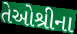
તેઓશ્રીના